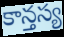
కాన్తస్య